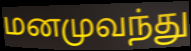
மனமுவந்து